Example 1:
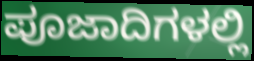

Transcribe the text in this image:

ಪೂಜಾದಿಗಳಲ್ಲಿ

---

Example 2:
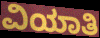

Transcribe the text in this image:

ವಿಯಾತಿ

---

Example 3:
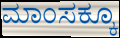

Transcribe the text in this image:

ಮಾಂಸಕ್ಕೂ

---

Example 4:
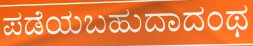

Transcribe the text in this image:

ಪಡೆಯಬಹುದಾದಂಥ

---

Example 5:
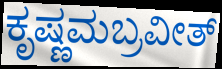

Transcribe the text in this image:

ಕೃಷ್ಣಮಬ್ರವೀತ್